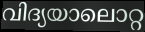
വിദ്യയാലൊറ്റ